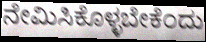
ನೇಮಿಸಿಕೊಳ್ಳಬೇಕೆಂದು